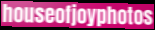
houseofjoyphotos